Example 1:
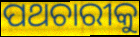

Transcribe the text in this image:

ପଥଚାରୀକୁ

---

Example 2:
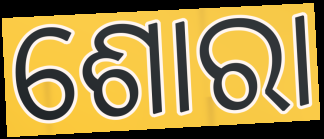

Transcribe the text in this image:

ଶୋରା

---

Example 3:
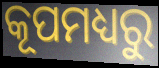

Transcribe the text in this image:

କୂପମଧ୍ୟରୁ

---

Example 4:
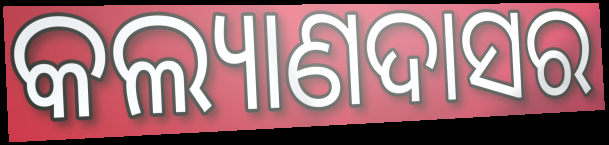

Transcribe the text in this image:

କଲ୍ୟାଣଦାସର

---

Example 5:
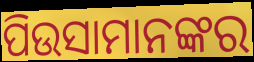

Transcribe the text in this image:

ପିଉସାମାନଙ୍କର